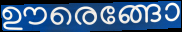
ഊരെങ്ങോ